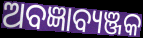
ଅବଜ୍ଞାବ୍ୟଞ୍ଜକ